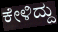
ಕೇಳಿದ್ದು